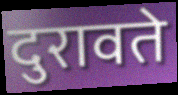
दुरावते